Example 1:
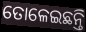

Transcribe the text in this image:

ତୋଳେଇଛନ୍ତି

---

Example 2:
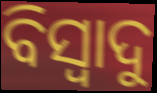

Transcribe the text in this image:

ବିସ୍ୱାଦୁ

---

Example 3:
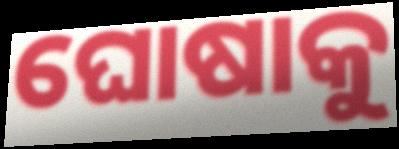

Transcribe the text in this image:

ଘୋଷାକୁ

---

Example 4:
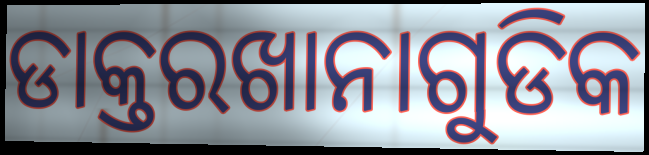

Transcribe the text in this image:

ଡାକ୍ତରଖାନାଗୁଡିକ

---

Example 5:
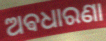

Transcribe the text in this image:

ଅଵଧାରଣା